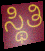
ಸ್ಥಿತಿ